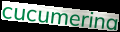
cucumerina